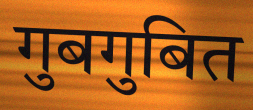
गुबगुबित